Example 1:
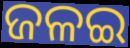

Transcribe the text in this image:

ଜଳଇ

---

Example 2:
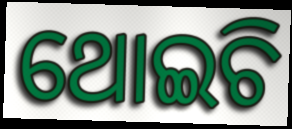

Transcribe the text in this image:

ଥୋଇଚି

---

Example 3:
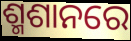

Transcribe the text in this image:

ଶ୍ମଶାନରେ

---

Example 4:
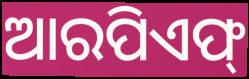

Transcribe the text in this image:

ଆରପିଏଫ୍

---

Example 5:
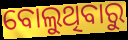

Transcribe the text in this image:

ବୋଲୁଥିବାରୁ